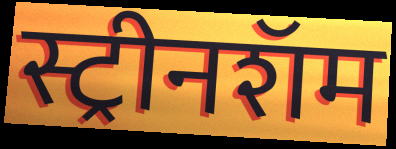
स्ट्रीनशॅम